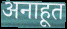
अनाहूत